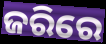
ଜରିରେ